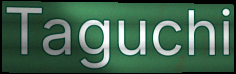
Taguchi